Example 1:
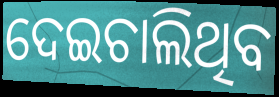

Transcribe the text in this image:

ଦେଇଚାଲିଥିବ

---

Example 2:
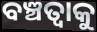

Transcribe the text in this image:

ବଞ୍ଚତ୍ବାକୁ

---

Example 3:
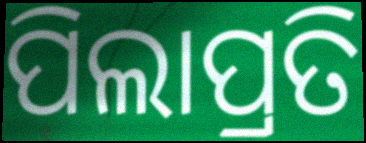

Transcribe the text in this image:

ପିଲାପ୍ରତି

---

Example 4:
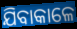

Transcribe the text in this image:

ଯିବାକାଳେ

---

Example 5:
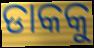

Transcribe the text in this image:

ଡାକକୁ